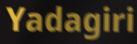
Yadagiri